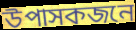
উপাসকজনে